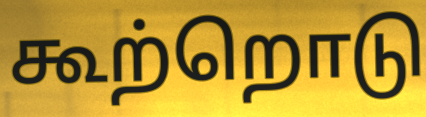
கூற்றொடு